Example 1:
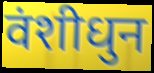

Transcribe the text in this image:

वंशीधुन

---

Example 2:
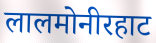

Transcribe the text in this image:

लालमोनीरहाट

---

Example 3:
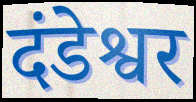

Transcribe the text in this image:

दंडेश्वर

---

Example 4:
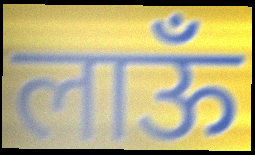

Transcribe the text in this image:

लाऊँ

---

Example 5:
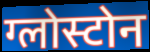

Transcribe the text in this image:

ग्लोस्टोन